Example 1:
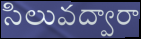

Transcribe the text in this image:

సిలువద్వారా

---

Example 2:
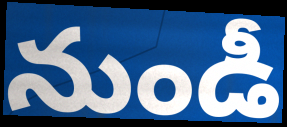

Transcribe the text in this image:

నుండీ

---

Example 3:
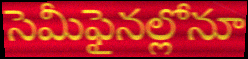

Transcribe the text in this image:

సెమీఫైనల్లోనూ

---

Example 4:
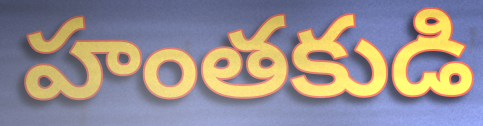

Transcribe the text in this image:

హంతకుడి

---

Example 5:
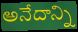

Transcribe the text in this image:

అనేదాన్ని